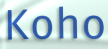
Koho